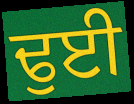
ਢੁਈ